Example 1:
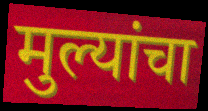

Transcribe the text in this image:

मुल्यांचा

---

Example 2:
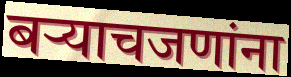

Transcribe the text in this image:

बऱ्याचजणांना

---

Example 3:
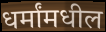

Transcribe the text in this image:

धर्मांमधील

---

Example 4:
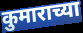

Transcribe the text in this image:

कुमाराच्या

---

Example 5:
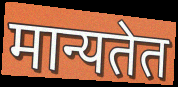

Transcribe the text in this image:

मान्यतेत